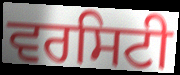
ਵਰਸਿਟੀ